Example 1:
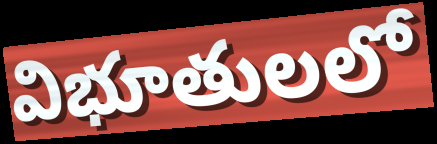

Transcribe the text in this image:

విభూతులలో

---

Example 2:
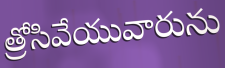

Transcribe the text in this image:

త్రోసివేయువారును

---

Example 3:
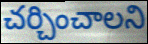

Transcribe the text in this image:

చర్చించాలని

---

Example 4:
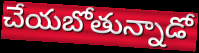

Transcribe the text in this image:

చేయబోతున్నాడో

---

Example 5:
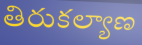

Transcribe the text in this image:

తిరుకల్యాణ